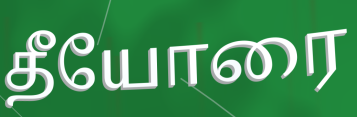
தீயோரை